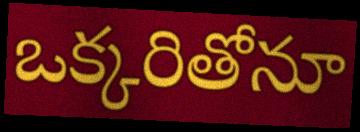
ఒక్కరితోనూ